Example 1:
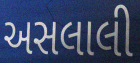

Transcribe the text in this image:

અસલાલી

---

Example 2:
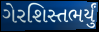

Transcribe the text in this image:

ગેરશિસ્તભર્યું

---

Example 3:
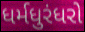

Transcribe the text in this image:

ધર્મધુરંધરો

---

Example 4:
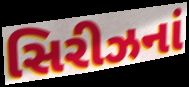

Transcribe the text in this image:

સિરીઝનાં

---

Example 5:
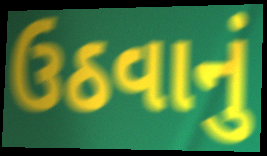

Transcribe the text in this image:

ઉઠવાનું